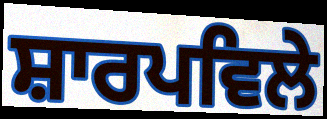
ਸ਼ਾਰਪਵਿਲੇ